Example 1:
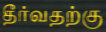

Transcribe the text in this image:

தீர்வதற்கு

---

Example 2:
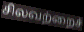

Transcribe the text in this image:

சிலவற்றைச்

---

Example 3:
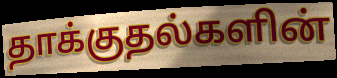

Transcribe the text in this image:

தாக்குதல்களின்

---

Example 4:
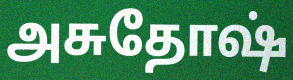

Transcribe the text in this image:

அசுதோஷ்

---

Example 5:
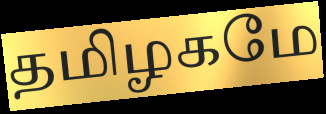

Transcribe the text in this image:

தமிழகமே